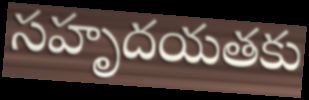
సహృదయతకు